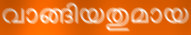
വാങ്ങിയതുമായ